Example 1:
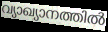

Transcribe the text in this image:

വ്യാഖ്യാനത്തിൽ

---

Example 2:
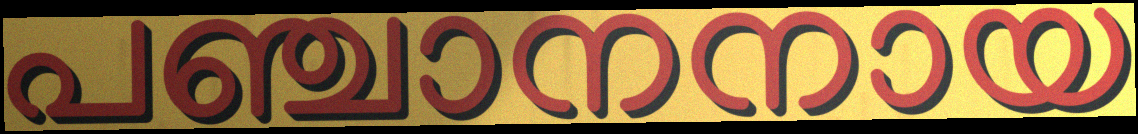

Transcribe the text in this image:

പഞ്ചാനനായ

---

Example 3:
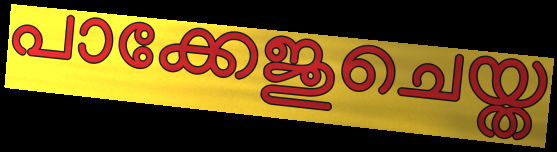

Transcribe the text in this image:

പാക്കേജുചെയ്ത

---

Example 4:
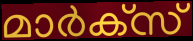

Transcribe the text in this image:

മാർക്‌സ്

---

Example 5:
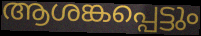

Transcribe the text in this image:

ആശങ്കപ്പെട്ടും